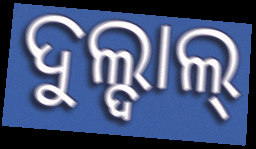
ଦୁଲ୍ଦାଲ୍